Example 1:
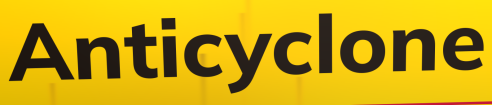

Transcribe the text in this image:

Anticyclone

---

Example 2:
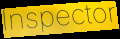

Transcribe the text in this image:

Inspector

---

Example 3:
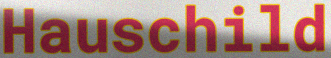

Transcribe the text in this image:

Hauschild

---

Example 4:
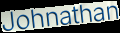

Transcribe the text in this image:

Johnathan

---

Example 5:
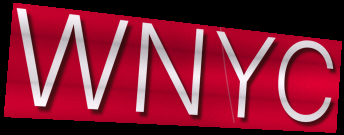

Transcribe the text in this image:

WNYC